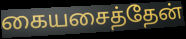
கையசைத்தேன்